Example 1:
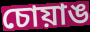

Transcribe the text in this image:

চোয়াঙ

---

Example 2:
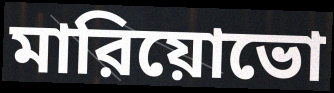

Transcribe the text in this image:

মারিয়োভো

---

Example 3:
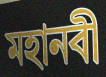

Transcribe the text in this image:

মহানবী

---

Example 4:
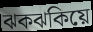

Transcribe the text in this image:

ঝকঝকিয়ে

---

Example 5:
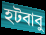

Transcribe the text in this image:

হটবাবু